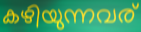
കഴിയുന്നവര്